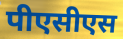
पीएसीएस